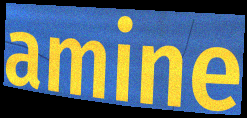
amine